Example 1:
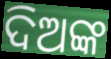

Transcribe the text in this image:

ଦିଅଙ୍କ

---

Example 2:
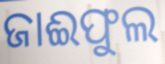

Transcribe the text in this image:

ଜାଈଫୁଲ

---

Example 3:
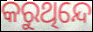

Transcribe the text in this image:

କରୁଥିନ୍ଦେ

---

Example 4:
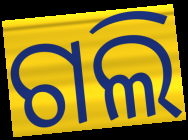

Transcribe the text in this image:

ଗଲି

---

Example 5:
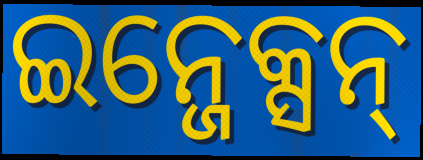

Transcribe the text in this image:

ଇନ୍ଜେକ୍ସନ୍